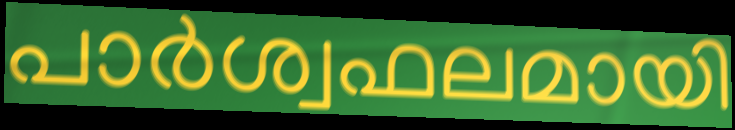
പാർശ്വഫലമായി